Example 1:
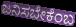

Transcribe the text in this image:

ಜನಿಸಬೇಕೆಂಬ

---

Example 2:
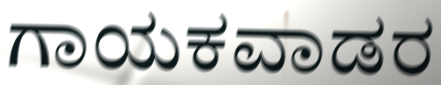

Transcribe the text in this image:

ಗಾಯಕವಾಡರ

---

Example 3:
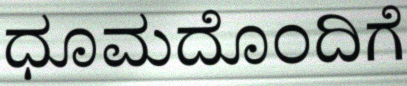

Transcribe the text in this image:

ಧೂಮದೊಂದಿಗೆ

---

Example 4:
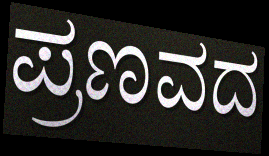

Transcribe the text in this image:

ಪ್ರಣವದ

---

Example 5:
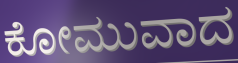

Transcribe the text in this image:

ಕೋಮುವಾದ